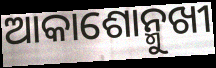
ଆକାଶୋନ୍ମୁଖୀ